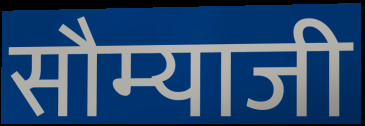
सौम्याजी